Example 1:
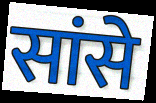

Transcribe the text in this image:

सांसे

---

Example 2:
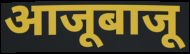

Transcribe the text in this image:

आजूबाजू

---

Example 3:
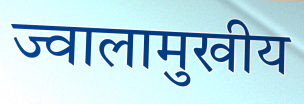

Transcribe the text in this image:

ज्वालामुखीय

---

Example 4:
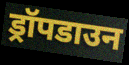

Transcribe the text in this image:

ड्रॉपडाउन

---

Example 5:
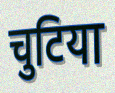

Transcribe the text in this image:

चुटिया